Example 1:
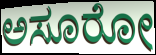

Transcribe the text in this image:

ಅಸೂರೋ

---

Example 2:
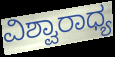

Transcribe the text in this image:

ವಿಶ್ವಾರಾಧ್ಯ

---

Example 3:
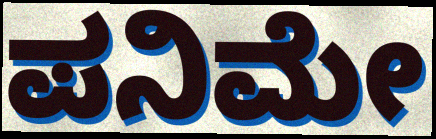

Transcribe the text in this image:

ಪನಿಮೇ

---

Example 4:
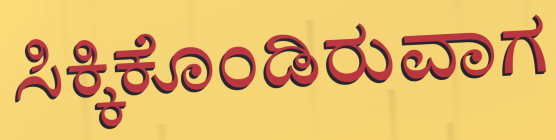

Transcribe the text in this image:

ಸಿಕ್ಕಿಕೊಂಡಿರುವಾಗ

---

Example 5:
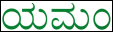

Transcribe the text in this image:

ಯಮಂ